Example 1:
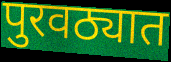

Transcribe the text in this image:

पुरवठ्यात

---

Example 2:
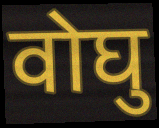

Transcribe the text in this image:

वोघु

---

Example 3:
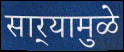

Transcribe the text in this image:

सार्यामुळे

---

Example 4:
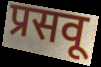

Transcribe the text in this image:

प्रसवू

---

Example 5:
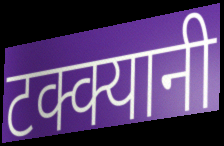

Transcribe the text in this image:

टक्क्यानी